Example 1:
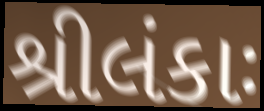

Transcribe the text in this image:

શ્રીલંકાઃ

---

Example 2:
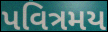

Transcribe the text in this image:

પવિત્રમય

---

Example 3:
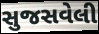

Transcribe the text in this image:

સુજસવેલી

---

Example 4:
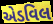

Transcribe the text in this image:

એડવિલ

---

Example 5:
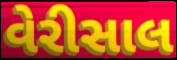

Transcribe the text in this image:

વેરીસાલ